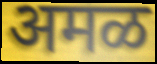
अमळ